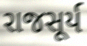
રાજસૂર્ય